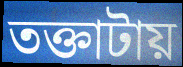
তক্তাটায়